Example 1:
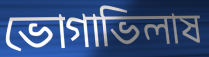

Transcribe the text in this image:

ভোগাভিলাষ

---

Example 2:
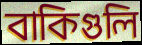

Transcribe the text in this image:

বাকিগুলি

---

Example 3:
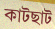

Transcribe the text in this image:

কাটছাট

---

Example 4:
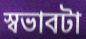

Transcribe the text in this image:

স্বভাবটা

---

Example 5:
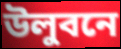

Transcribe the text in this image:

উলুবনে